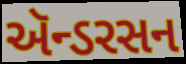
ઍન્ડરસન